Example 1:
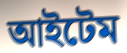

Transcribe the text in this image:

আইটেম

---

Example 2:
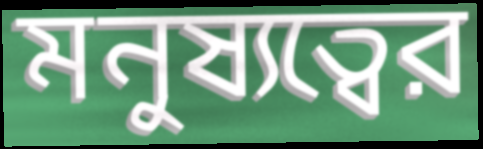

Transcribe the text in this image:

মনুষ্যত্বের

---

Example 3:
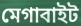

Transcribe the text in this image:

মেগাবাইট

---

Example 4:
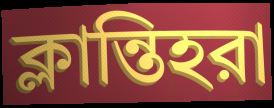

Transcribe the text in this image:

ক্লান্তিহরা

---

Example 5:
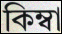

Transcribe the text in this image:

কিম্বা